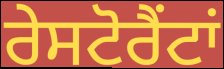
ਰੇਸਟੋਰੈਂਟਾਂ